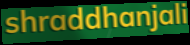
shraddhanjali